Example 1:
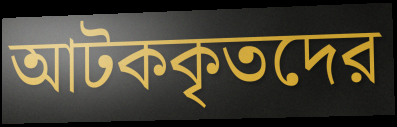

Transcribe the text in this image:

আটককৃতদের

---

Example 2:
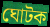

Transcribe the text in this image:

ঘোটক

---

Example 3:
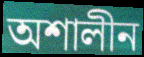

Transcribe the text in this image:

অশালীন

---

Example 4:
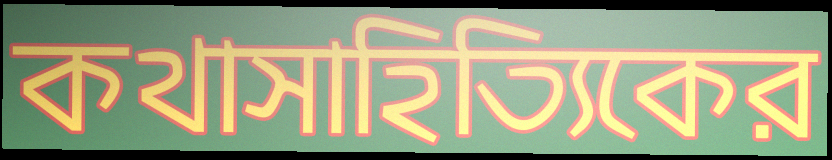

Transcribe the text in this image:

কথাসাহিত্যিকের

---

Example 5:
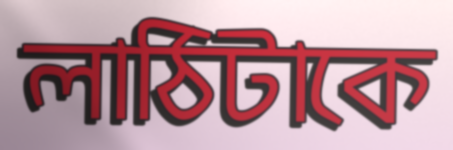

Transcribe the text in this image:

লাঠিটাকে